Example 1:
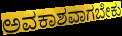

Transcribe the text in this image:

ಅವಕಾಶವಾಗಬೇಕು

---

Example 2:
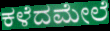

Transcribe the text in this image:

ಕಳೆದಮೇಲೆ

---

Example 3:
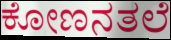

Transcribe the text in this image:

ಕೋಣನತಲೆ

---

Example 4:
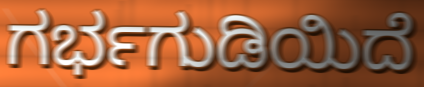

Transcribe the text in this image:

ಗರ್ಭಗುಡಿಯಿದೆ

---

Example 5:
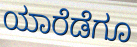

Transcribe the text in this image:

ಯಾರೆಡೆಗೂ